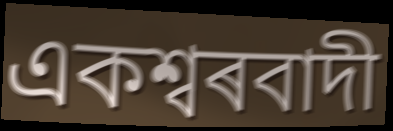
একশ্বৰবাদী